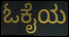
ಓಕೈಯ